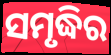
ସମୃଦ୍ଧିର